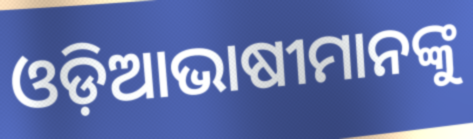
ଓଡ଼ିଆଭାଷୀମାନଙ୍କୁ